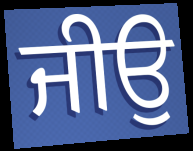
ਜੀਉ